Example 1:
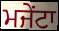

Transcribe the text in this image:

ਮਜੇਂਟਾ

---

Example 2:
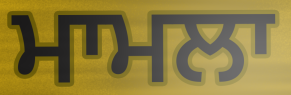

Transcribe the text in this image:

ਮਾਮਲਾ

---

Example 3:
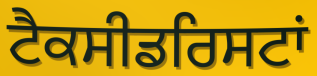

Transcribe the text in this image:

ਟੈਕਸੀਡਰਿਸਟਾਂ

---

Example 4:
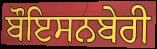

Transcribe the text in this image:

ਬੌਇਸਨਬੇਰੀ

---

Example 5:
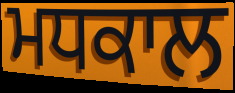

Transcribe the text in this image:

ਮਧਕਾਲ